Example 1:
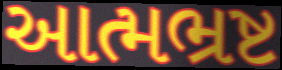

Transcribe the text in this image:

આત્મભ્રષ્ટ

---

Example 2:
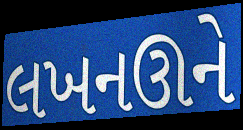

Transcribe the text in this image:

લખનઊને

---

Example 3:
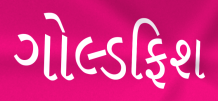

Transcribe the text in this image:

ગોલ્ડફિશ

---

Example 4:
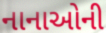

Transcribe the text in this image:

નાનાઓની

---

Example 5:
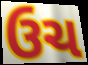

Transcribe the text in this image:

ઉચ